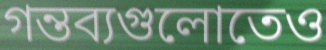
গন্তব্যগুলোতেও